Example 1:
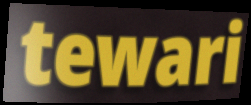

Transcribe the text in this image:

tewari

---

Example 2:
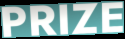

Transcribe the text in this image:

PRIZE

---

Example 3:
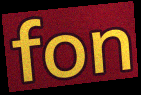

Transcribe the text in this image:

fon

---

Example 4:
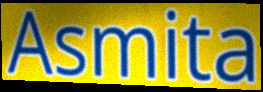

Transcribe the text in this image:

Asmita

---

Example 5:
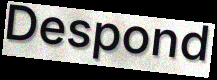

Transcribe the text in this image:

Despond